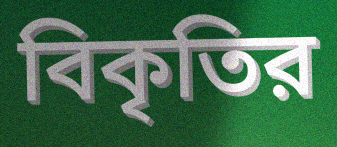
বিকৃতির